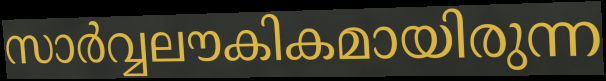
സാർവ്വലൗകികമായിരുന്ന